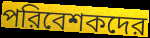
পরিবেশকদের